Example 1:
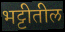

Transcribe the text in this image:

भट्टीतील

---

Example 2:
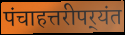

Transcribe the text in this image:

पंचाहत्तरीपर्यंत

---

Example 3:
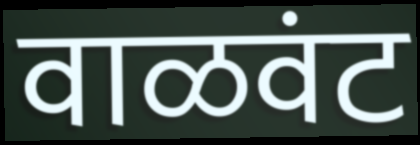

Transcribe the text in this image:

वाळवंट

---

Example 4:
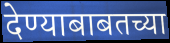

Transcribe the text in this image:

देण्याबाबतच्या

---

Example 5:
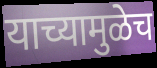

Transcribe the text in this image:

याच्यामुळेच